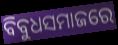
ବିବୁଧସମାଜରେ